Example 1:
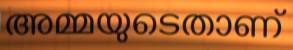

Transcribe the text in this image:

അമ്മയുടെതാണ്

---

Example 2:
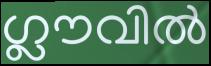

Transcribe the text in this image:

ഗ്ലൗവിൽ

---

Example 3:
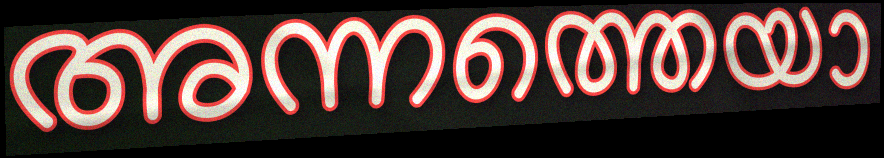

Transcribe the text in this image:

അന്നത്തെയാ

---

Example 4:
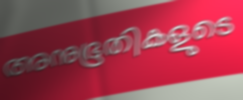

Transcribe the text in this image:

അനുഭൂതികളുടെ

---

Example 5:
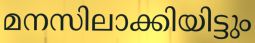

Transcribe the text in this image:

മനസിലാക്കിയിട്ടും